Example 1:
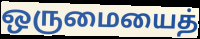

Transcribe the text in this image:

ஒருமையைத்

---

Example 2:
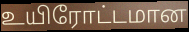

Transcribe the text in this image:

உயிரோட்டமான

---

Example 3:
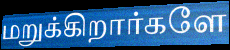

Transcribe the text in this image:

மறுக்கிறார்களே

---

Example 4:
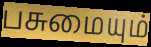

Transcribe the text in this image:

பசுமையும்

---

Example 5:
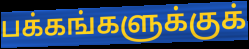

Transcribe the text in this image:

பக்கங்களுக்குக்